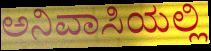
ಅನಿವಾಸಿಯಲ್ಲಿ